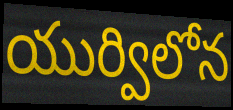
యుర్విలోన